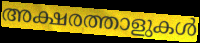
അക്ഷരത്താളുകൾ